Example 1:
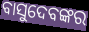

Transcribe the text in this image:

ବାସୁଦେବଙ୍କର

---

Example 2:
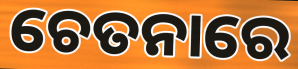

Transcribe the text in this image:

ଚେତନାରେ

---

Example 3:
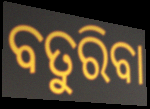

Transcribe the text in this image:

ବତୁରିବା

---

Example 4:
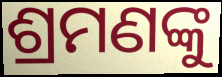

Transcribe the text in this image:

ଶ୍ରମଣଙ୍କୁ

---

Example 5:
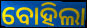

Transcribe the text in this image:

ବୋହିଲା